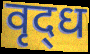
वृद्ध